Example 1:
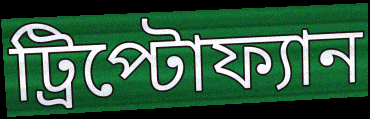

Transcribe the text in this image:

ট্রিপ্টোফ্যান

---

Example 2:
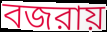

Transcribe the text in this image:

বজরায়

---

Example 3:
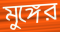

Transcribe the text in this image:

মুঙ্গের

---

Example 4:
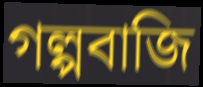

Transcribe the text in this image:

গল্পবাজি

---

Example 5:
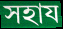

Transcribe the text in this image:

সহায